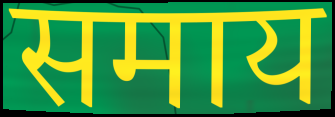
समाय